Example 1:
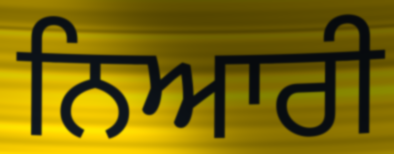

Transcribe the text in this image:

ਨਿਆਰੀ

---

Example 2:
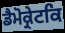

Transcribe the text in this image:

ਡੈਮੋਕ੍ਰੇਟਕਿ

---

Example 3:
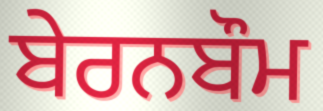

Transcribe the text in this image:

ਬੇਰਨਬੌਮ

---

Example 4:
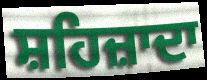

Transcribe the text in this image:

ਸ਼ਹਿਜ਼ਾਦਾ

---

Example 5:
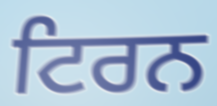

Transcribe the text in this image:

ਟਿਰਨ